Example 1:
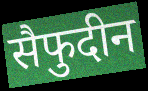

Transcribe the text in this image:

सैफुदीन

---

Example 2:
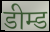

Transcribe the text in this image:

डीम्ड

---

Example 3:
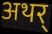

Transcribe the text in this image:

अथर्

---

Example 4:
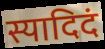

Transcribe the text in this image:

स्यादिदं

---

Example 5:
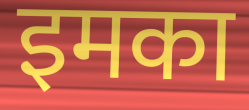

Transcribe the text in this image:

इमका